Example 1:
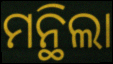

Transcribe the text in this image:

ମନ୍ଥିଲା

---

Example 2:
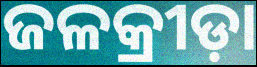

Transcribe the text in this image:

ଜଳକ୍ରୀଡ଼ା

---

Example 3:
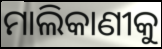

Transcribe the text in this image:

ମାଲିକାଣୀକୁ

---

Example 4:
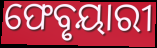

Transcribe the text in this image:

ଫେବୃୟାରୀ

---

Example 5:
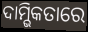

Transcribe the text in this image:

ଦାମ୍ଭିକତାରେ